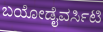
ಬಯೋಡೈವರ್ಸಿಟಿ